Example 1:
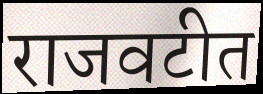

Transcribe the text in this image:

राजवटीत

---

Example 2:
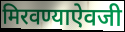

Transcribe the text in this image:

मिरवण्याऐवजी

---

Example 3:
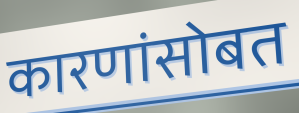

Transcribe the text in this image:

कारणांसोबत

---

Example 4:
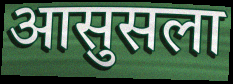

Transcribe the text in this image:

आसुसला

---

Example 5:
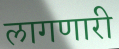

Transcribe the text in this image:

लागणारी